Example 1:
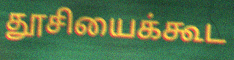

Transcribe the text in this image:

தூசியைக்கூட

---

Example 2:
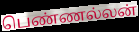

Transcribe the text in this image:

பெண்ணல்லன்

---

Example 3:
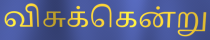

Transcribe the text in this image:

விசுக்கென்று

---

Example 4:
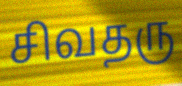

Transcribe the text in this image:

சிவதரு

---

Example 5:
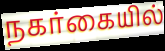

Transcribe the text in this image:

நகர்கையில்